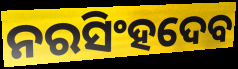
ନରସିଂହଦେବ